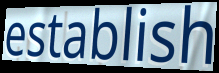
establish